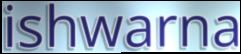
ishwarna